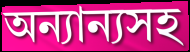
অন্যান্যসহ